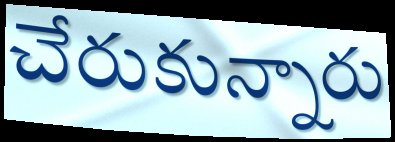
చేరుకున్నారు